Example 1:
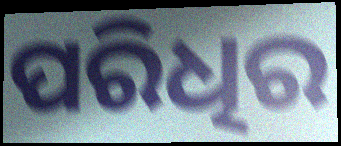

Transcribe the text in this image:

ପରିଧିର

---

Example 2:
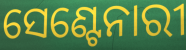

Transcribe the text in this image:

ସେଣ୍ଟେନାରୀ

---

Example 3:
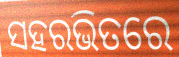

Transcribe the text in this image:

ସହରଭିତରେ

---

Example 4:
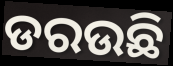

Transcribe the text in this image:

ଡରଉଛି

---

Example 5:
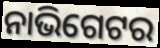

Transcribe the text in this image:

ନାଭିଗେଟର